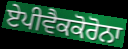
ਏਪੀਵੈਕਕੋਰੋਨਾ